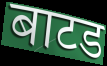
बाटड